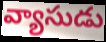
వ్యాసుడు